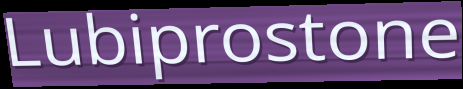
Lubiprostone